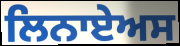
ਲਿਨਾਏਅਸ